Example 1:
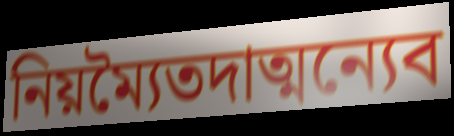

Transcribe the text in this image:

নিয়ম্যৈতদাত্মন্যেব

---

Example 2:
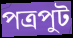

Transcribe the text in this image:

পত্রপুট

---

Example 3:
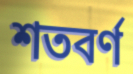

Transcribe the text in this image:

শতবর্ণ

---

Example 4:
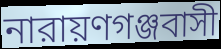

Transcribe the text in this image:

নারায়ণগঞ্জবাসী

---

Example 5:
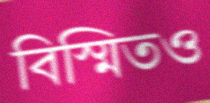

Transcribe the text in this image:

বিস্মিতও